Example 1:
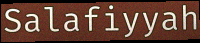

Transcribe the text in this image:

Salafiyyah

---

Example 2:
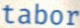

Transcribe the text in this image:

tabor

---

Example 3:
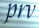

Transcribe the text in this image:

prv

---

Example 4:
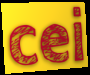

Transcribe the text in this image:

cei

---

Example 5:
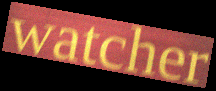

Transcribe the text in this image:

watcher